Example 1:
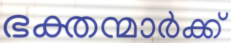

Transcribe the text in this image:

ഭക്തന്മാർക്ക്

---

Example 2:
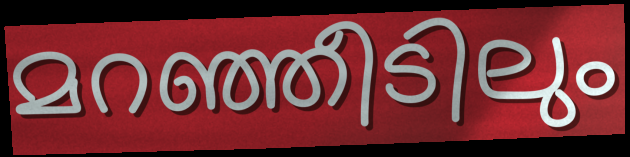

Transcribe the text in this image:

മറഞ്ഞീടിലും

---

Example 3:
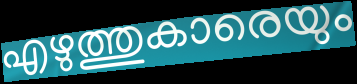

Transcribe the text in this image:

എഴുത്തുകാരെയും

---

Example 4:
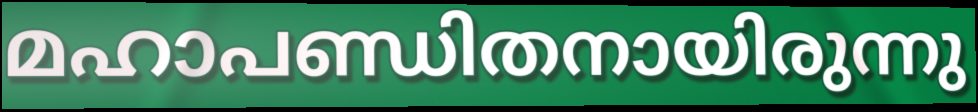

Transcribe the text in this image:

മഹാപണ്ഡിതനായിരുന്നു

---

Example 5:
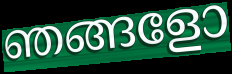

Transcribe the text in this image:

ഞങ്ങളോ